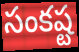
సంకష్ట